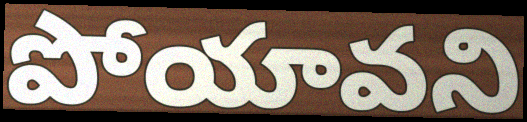
పోయావని